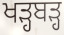
ਖੜ੍ਹਬੜ੍ਹ